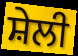
ਸ਼ੇਲੀ